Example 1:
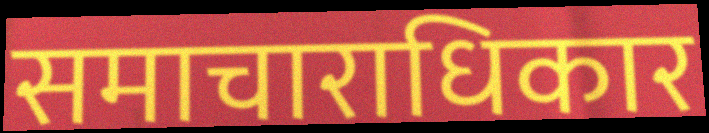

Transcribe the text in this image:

समाचाराधिकार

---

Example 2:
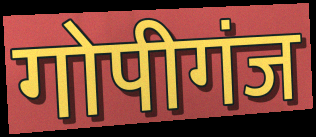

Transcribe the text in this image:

गोपीगंज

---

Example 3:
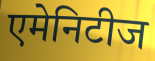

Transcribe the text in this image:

एमेनिटीज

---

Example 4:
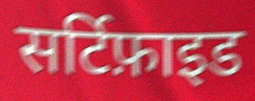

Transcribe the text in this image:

सर्टिफ़ाइड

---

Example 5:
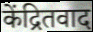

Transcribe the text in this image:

केंद्रितवाद